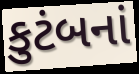
કુટંબનાં